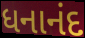
ધનાનંદ